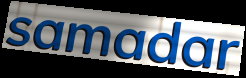
samadar